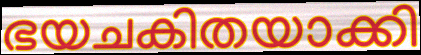
ഭയചകിതയാക്കി